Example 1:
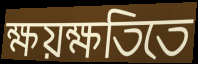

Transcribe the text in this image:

ক্ষয়ক্ষতিতে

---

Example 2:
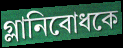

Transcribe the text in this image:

গ্লানিবোধকে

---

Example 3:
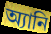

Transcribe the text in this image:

অ্যানি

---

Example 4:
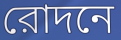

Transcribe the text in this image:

রোদনে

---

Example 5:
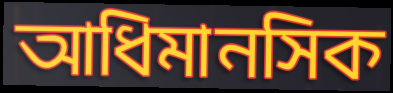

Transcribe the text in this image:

আধিমানসিক